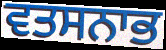
ਵਤਸਨਾਭ